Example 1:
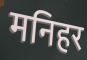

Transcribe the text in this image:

मनिहर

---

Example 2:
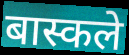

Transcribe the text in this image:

बास्कले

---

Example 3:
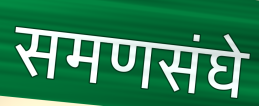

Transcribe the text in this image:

समणसंघे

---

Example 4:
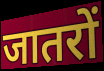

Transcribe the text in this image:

जातरों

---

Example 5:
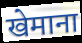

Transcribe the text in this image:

खेमाना